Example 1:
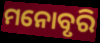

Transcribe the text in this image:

ମନୋବୃରି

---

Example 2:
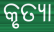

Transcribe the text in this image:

କୃତ୍ୟା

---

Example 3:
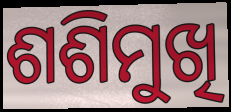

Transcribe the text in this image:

ଶଶିମୁଖି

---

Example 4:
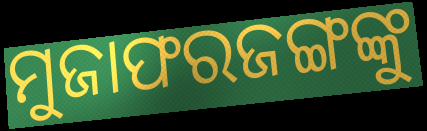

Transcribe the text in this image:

ମୁଜାଫରଜଙ୍ଗଙ୍କୁ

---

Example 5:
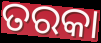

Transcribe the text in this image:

ତରକା